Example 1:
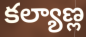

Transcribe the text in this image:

కల్యాణ్ల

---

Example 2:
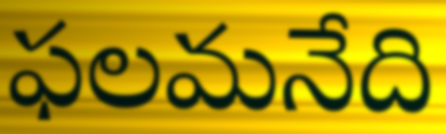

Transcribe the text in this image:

ఫలమనేది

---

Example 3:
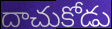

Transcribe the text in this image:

దాచుకోడు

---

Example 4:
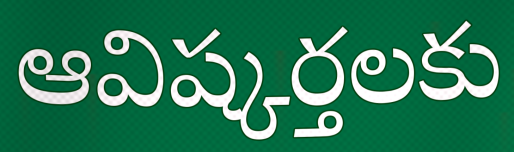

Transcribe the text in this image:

ఆవిష్కర్తలకు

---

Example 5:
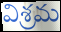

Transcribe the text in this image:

విశ్రమ